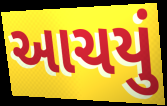
આચયું